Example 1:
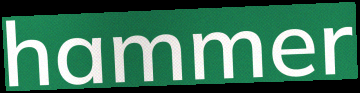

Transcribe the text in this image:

hammer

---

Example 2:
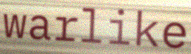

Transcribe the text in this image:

warlike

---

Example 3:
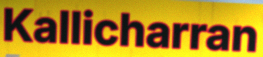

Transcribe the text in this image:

Kallicharran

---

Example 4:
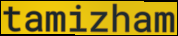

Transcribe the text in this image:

tamizham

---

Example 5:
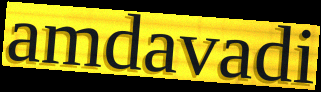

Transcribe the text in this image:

amdavadi